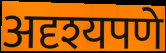
अदृश्यपणे